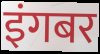
इंगबर